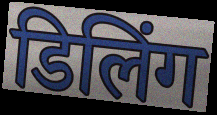
डिलिंग